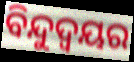
ବିନ୍ଦୁଦ୍ବୟର